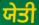
ਯੇਤੀ